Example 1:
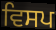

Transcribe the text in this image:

ਵਿਸਪ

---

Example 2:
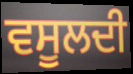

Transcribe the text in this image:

ਵਸੂਲਦੀ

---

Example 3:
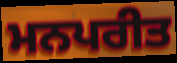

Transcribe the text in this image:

ਮਨਪਰੀਤ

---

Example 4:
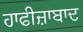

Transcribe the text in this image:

ਹਾਫੀਜ਼ਾਬਾਦ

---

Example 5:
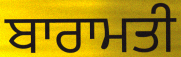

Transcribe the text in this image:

ਬਾਰਾਮਤੀ